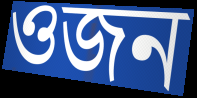
ওজন